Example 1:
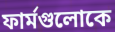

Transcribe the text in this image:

ফার্মগুলোকে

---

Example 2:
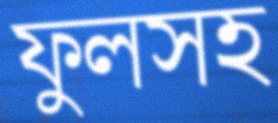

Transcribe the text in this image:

ফুলসহ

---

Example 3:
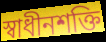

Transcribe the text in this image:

স্বাধীনশক্তি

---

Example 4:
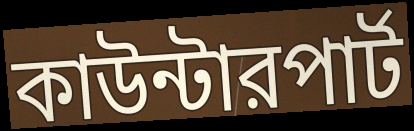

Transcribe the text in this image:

কাউন্টারপার্ট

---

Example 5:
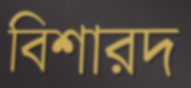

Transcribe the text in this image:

বিশারদ